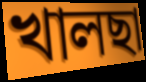
খালছা